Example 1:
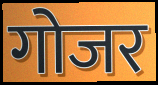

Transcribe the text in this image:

गोजर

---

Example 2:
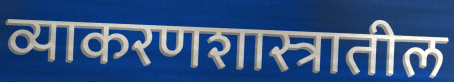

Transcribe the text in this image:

व्याकरणशास्त्रातील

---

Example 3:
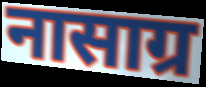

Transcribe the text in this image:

नासाग्र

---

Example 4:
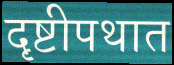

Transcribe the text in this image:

दृष्टीपथात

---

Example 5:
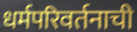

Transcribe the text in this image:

धर्मपरिवर्तनाची